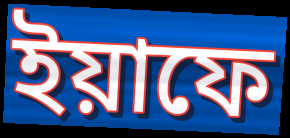
ইয়াফে